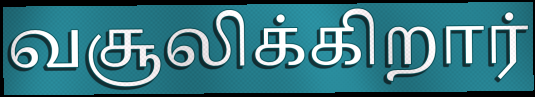
வசூலிக்கிறார்